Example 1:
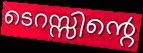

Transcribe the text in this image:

ടെറസ്സിന്റെ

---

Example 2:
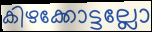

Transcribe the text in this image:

കിഴക്കോട്ടല്ലോ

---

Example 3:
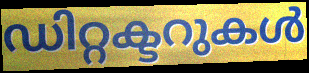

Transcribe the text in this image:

ഡിറ്റക്ടറുകൾ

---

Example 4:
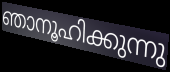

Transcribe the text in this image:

ഞാനൂഹിക്കുന്നു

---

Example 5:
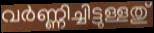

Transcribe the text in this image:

വർണ്ണിച്ചിട്ടുള്ളതു്